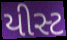
યીસ્ટ